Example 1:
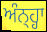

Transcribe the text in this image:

ਅੰਨ੍ਹ੍ਹਾ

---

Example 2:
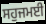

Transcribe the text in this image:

ਸਹੁਜਮਈ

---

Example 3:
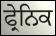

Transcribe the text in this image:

ਫ੍ਰੇਨਿਕ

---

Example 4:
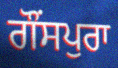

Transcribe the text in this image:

ਗੌਂਸਪੁਰਾ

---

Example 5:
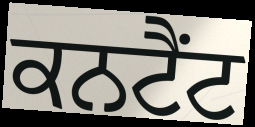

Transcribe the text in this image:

ਕਨਟੈਂਟ